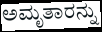
ಅಮೃತಾರನ್ನು